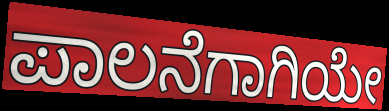
ಪಾಲನೆಗಾಗಿಯೇ